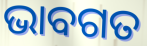
ଭାବଗତ